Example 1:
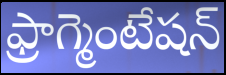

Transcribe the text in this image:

ఫ్రాగ్మెంటేషన్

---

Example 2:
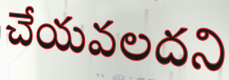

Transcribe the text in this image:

చేయవలదని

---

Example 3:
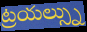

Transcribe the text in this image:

ట్రయల్స్ను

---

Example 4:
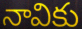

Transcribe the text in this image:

నావికు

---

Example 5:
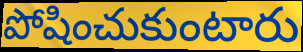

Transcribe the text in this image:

పోషించుకుంటారు